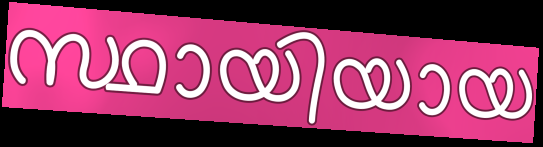
സ്ഥായിയായ